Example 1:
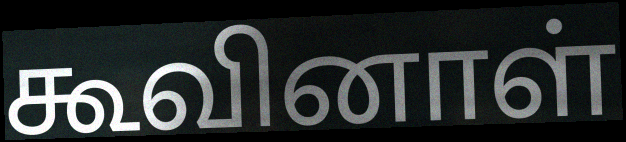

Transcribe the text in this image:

கூவினாள்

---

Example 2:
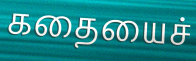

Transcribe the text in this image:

கதையைச்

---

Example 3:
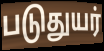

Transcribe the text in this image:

படுதுயர்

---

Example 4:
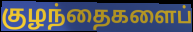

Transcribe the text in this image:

குழந்தைகளைப்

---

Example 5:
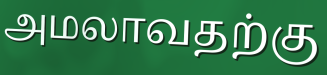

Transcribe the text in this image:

அமலாவதற்கு